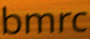
bmrc